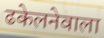
ढकेलनेवाला